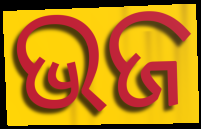
ଭଜ